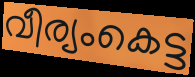
വീര്യംകെട്ട